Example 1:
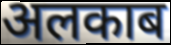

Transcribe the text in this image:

अलकाब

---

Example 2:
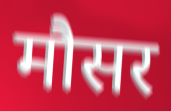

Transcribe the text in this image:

मौसर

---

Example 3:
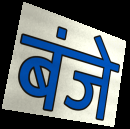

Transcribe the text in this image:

बंजे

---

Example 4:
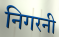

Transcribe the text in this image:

निगरनी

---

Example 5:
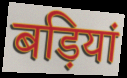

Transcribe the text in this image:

बड़ियां